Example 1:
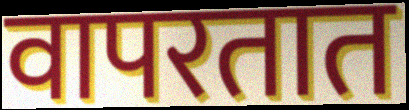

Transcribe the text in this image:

वापरतात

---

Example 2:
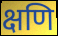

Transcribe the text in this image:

क्षणि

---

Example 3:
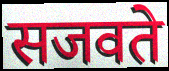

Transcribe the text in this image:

सजवते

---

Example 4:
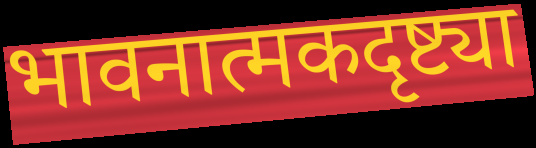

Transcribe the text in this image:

भावनात्मकदृष्ट्या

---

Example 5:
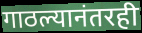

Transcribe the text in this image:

गाठल्यानंतरही